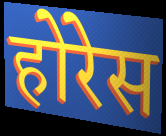
होरेस